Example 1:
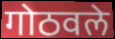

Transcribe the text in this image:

गोठवले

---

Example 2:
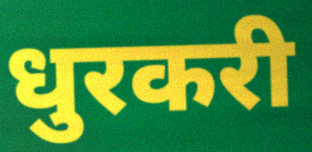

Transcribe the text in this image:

धुरकरी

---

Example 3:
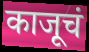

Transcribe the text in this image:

काजूचं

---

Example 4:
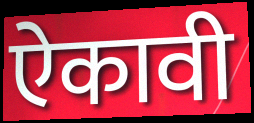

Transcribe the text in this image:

ऐकावी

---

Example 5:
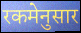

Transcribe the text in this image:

रकमेनुसार